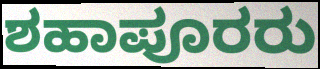
ಶಹಾಪೂರರು